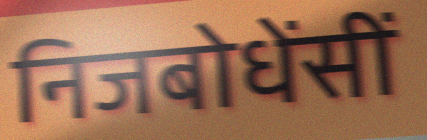
निजबोधेंसीं